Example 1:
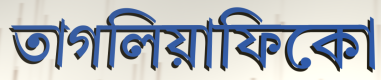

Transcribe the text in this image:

তাগলিয়াফিকো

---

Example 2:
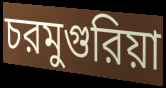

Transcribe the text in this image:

চরমুগুরিয়া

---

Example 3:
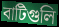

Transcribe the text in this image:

বাটিগুলি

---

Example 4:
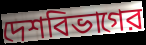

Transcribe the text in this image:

দেশবিভাগের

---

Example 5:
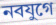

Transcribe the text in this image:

নবযুগে